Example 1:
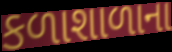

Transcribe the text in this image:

કળાશાળાના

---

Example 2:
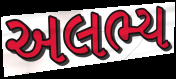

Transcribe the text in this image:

અલભ્ય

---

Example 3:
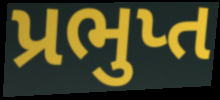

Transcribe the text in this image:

પ્રભુપ્ત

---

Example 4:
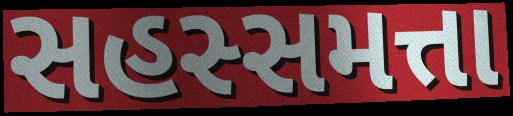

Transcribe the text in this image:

સહસ્સમત્તા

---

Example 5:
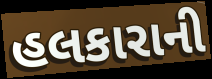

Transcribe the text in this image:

હલકારાની